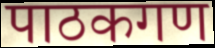
पाठकगण